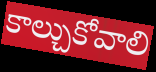
కాల్చుకోవాలి